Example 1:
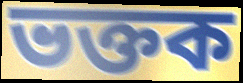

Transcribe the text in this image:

ভক্তক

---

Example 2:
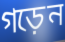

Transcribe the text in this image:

গড়েন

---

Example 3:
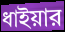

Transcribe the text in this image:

ধাইয়ার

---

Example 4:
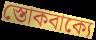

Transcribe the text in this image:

স্তোকবাক্যে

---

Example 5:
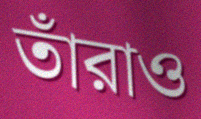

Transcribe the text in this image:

তাঁরাও